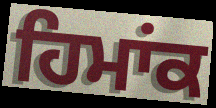
ਹਿਮਾਂਕ